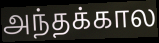
அந்தக்கால